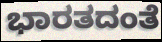
ಭಾರತದಂತೆ